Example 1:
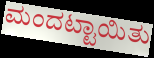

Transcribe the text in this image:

ಮಂದಟ್ಟಾಯಿತು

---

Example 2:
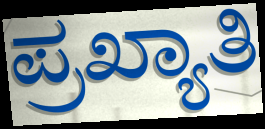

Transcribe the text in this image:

ಪ್ರಖ್ಯಾತಿ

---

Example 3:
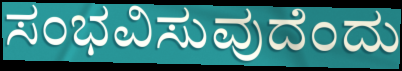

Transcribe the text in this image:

ಸಂಭವಿಸುವುದೆಂದು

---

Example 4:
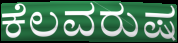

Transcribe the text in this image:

ಕೆಲವರುಷ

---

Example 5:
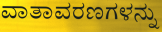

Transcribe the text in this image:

ವಾತಾವರಣಗಳನ್ನು